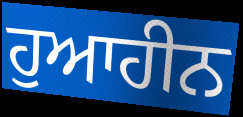
ਹੁਆਹੀਨ